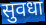
सुवधा